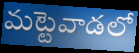
మట్టెవాడలో